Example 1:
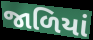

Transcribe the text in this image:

જાળિયાં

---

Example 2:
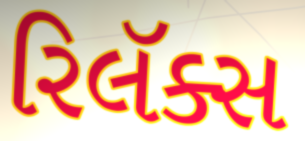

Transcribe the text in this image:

રિલૅક્સ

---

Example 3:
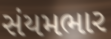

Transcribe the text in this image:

સંયમભાર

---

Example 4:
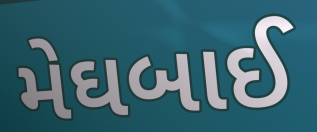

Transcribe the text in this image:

મેઘબાઈ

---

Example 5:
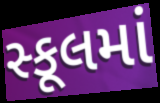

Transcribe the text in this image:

સ્કૂલમાં